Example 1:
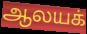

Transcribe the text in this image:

ஆலயக்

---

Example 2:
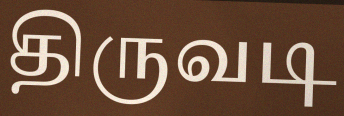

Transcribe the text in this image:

திருவடி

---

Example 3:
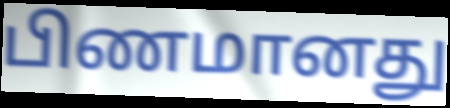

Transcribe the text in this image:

பிணமானது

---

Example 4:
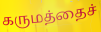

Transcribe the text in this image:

கருமத்தைச்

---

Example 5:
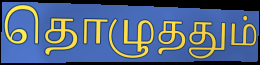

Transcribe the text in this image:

தொழுததும்